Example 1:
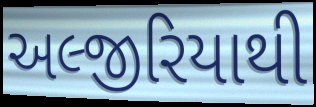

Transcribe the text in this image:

અલ્જીરિયાથી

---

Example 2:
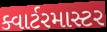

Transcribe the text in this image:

ક્વાર્ટરમાસ્ટર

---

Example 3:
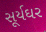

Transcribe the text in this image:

સૂર્યઘર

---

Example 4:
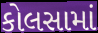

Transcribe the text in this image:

કોલસામાં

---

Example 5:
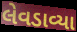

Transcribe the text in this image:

લેવડાવ્યા